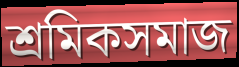
শ্রমিকসমাজ